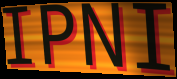
IPNI